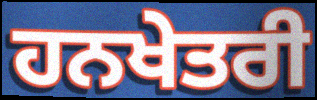
ਹਨਖੇਤਰੀ